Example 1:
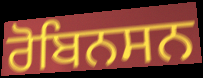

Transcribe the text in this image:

ਰੋਬਿਨਸਨ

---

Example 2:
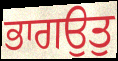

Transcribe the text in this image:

ਭਾਗਉਤੁ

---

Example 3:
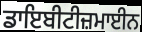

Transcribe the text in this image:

ਡਾਇਬੀਟੀਜ਼ਮਾਈਨ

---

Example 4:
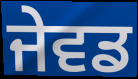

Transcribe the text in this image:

ਜੇਵਡ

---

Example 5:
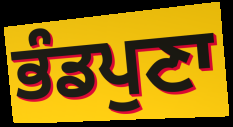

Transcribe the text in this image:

ਭੰਡਪੁਣਾ